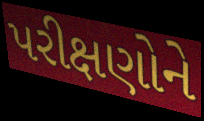
પરીક્ષણોને